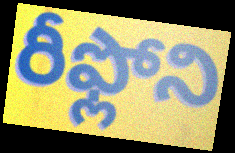
రీఫ్లోని